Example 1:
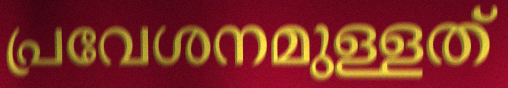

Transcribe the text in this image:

പ്രവേശനമുള്ളത്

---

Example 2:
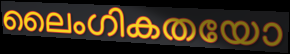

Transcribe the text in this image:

ലൈംഗികതയോ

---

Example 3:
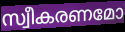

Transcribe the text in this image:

സ്വീകരണമോ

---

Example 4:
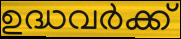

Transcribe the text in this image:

ഉദ്ധവർക്ക്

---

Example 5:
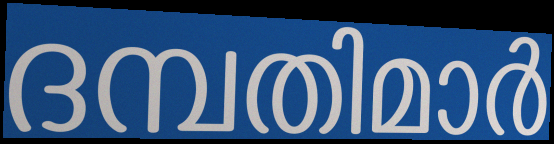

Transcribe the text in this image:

ദമ്പതിമാർ